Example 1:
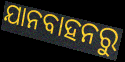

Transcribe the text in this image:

ଯାନବାହନରୁ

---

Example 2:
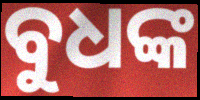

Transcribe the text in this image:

ବୁଧଙ୍କ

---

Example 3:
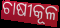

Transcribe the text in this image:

ଚାଷୀକୂଳ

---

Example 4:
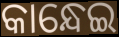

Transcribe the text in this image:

କାନ୍ଧେଇ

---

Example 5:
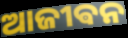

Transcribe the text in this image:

ଆଜୀଵନ